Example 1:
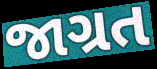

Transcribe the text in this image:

જાગ્રત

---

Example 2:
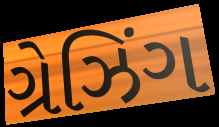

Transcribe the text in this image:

ગ્રેઝિંગ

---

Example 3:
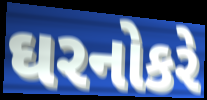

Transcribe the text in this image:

ઘરનોકરે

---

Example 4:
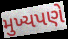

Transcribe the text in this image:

મુખ્યપણે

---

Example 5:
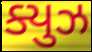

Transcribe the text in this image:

ક્યુઝ